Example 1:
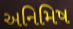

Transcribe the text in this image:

અનિમિષ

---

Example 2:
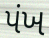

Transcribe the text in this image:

પંખ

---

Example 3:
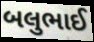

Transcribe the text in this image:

બલુભાઈ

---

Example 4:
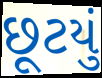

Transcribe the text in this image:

છૂટયું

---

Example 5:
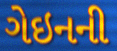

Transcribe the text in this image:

ગેઇનની